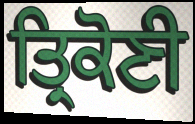
ਤ੍ਰਿਕੋਣੀ